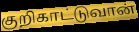
குறிகாட்டுவான்